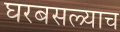
घरबसल्याच